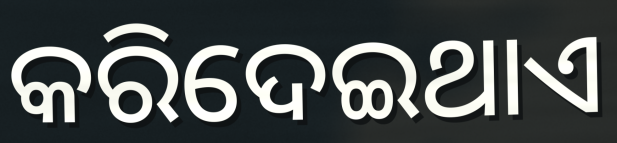
କରିଦେଇଥାଏ